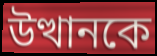
উত্থানকে